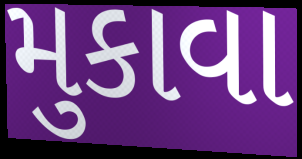
મુકાવા